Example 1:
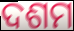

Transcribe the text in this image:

ଦଶମ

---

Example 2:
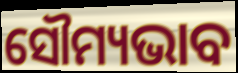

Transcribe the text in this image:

ସୌମ୍ୟଭାବ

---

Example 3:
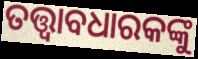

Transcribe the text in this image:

ତତ୍ତ୍ଵାବଧାରକଙ୍କୁ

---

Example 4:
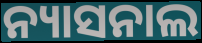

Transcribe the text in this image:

ନ୍ୟାସନାଲ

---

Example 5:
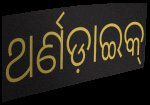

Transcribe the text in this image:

ଥର୍ଣଡ଼ାଇକ୍